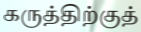
கருத்திற்குத்